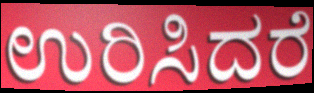
ಉರಿಸಿದರೆ